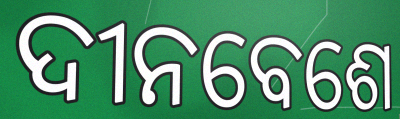
ଦୀନବେଶେ